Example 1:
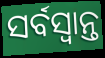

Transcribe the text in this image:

ସର୍ବସ୍ୱାନ୍ତ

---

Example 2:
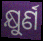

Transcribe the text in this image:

କ୍ଷୁର୍ଣ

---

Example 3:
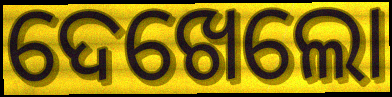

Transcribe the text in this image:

ଦେଖେଲୋ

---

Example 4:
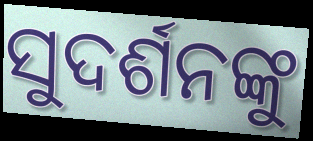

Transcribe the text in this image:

ସୁଦର୍ଶନଙ୍କୁ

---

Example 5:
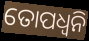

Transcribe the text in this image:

ତୋପଧ୍ୱନି